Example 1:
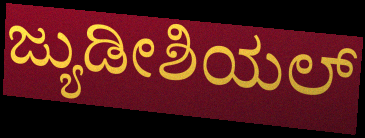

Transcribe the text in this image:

ಜ್ಯುಡೀಶಿಯಲ್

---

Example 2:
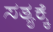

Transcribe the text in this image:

ಸತ್ಯಕ್ಕೆ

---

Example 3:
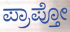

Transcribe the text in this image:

ಪ್ರಾಪ್ತೋ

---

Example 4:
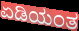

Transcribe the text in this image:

ಏಡಿಯಂತ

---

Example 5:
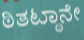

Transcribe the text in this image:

ಠಿತಟ್ಠಾನೇ